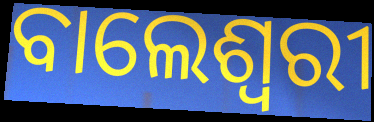
ବାଲେଶ୍ଵରୀ